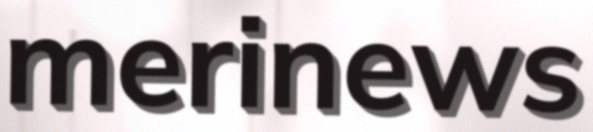
merinews